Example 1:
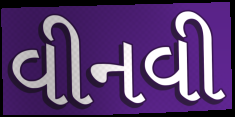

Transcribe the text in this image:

વીનવી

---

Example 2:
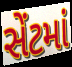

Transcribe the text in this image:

સેંટમાં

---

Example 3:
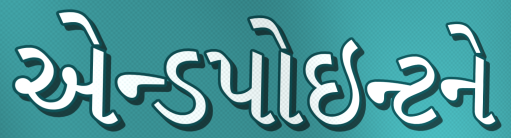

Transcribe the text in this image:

એન્ડપોઇન્ટને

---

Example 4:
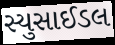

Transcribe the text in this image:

સ્યુસાઈડલ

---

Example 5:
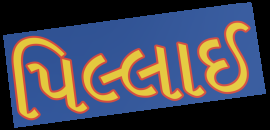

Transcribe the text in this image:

પિલ્લાઈ